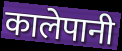
कालेपानी